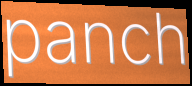
panch